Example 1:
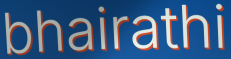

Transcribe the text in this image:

bhairathi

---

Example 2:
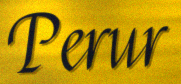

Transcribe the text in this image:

Perur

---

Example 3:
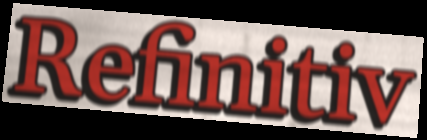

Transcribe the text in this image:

Refinitiv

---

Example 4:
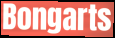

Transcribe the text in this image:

Bongarts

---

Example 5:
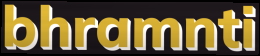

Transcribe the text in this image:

bhramnti